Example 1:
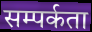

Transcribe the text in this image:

सम्पर्कता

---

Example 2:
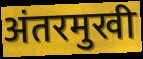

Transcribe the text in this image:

अंतरमुखी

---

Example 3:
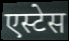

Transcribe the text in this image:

एस्टेस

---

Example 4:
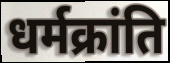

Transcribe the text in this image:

धर्मक्रांति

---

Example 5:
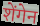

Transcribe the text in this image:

शेंगेन